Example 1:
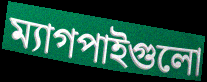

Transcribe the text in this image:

ম্যাগপাইগুলো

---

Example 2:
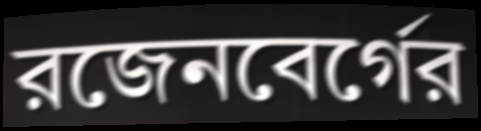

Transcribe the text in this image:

রজেনবের্গের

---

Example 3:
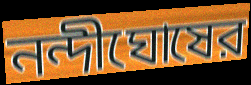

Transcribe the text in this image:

নন্দীঘোষের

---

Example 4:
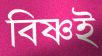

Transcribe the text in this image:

বিষ্ণই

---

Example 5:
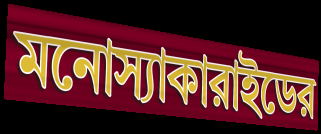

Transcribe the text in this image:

মনোস্যাকারাইডের